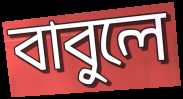
বাবুলে